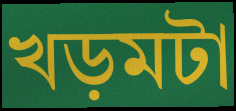
খড়মটা